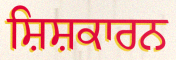
ਸ਼ਿਸ਼ਕਾਰਨ